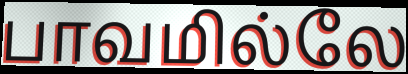
பாவமில்லே